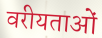
वरीयताओं